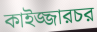
কাইজ্জারচর